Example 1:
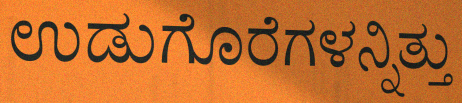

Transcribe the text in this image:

ಉಡುಗೊರೆಗಳನ್ನಿತ್ತು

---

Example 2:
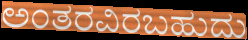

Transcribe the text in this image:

ಅಂತರವಿರಬಹುದು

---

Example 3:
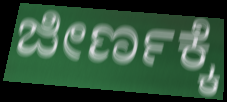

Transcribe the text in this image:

ಜೀರ್ಣಕ್ಕೆ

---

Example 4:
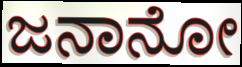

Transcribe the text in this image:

ಜನಾನೋ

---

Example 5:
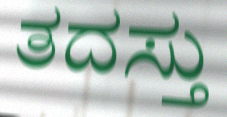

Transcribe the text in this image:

ತದಸ್ತು